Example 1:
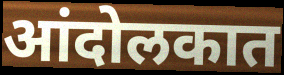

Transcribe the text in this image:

आंदोलकात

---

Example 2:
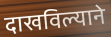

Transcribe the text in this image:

दाखविल्याने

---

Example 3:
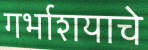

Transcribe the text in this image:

गर्भाशयाचे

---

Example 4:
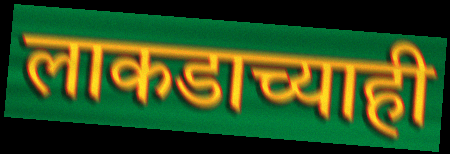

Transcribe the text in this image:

लाकडाच्याही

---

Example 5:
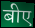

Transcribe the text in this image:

बीए